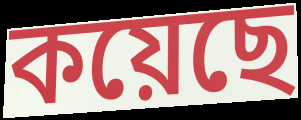
কয়েছে